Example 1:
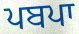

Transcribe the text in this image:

ਪਬਪਾ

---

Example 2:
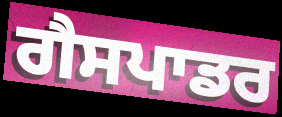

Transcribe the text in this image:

ਗੈਸਪਾਡਰ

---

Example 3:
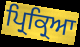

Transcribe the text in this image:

ਪ੍ਰਿਕ੍ਰਿਆ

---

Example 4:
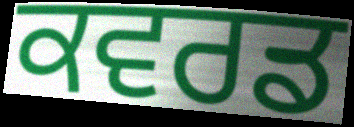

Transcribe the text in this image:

ਕਵਰਡ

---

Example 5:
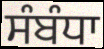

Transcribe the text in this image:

ਸੰਬੰਧਾ